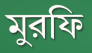
মুরফি